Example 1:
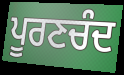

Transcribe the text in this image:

ਪੂਰਣਚੰਦ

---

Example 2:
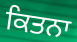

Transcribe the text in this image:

ਕਿਤਨਾ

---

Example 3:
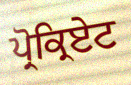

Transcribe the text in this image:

ਪ੍ਰੋਕ੍ਰਿਏਟ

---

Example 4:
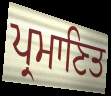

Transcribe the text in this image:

ਪ੍ਰਮਾਣਿਤ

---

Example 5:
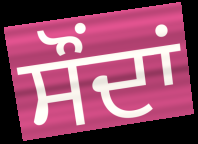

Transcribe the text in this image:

ਸੌਂਦਾਂ